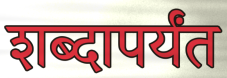
शब्दापर्यंत